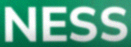
NESS